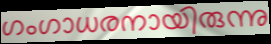
ഗംഗാധരനായിരുന്നു